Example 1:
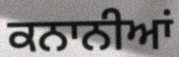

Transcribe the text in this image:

ਕਨਾਨੀਆਂ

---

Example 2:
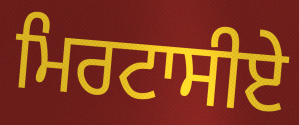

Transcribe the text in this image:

ਮਿਰਟਾਸੀਏ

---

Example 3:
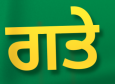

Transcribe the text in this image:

ਗਤੇ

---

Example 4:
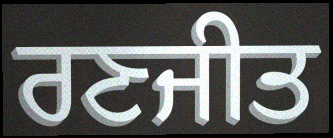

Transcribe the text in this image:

ਰਣਜੀਤ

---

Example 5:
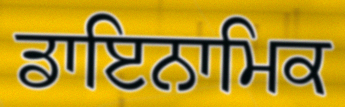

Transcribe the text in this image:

ਡਾਇਨਾਮਿਕ